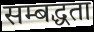
सम्‍बद्धता